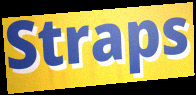
Straps